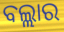
ବଲ୍ଲାର